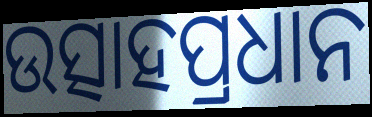
ଉତ୍ସାହପ୍ରଧାନ